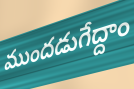
ముందడుగేద్దాం